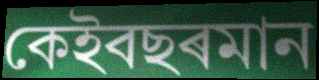
কেইবছৰমান